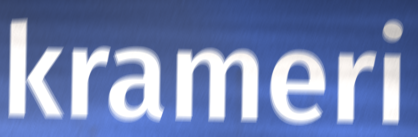
krameri